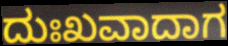
ದುಃಖವಾದಾಗ